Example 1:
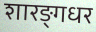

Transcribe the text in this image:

शारङ्गधर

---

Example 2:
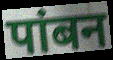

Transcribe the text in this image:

पांबन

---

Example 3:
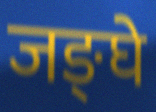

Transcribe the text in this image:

जङ्घे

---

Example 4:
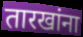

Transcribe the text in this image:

तारखांना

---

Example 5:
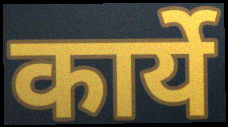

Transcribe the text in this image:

कार्ये